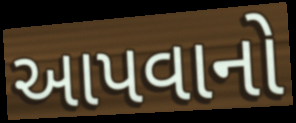
આપવાનો